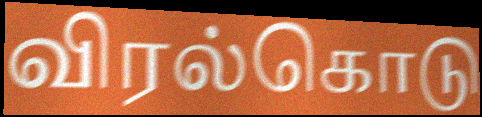
விரல்கொடு